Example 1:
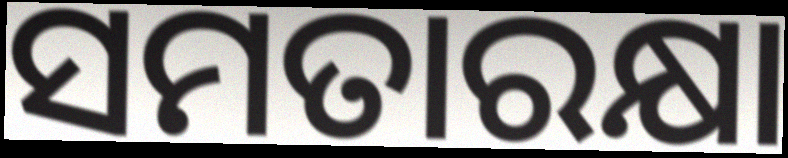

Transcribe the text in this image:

ସମତାରକ୍ଷା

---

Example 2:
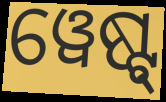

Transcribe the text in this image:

ୱେଷ୍ଟ୍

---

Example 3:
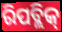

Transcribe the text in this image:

ରିପବ୍ଲିକ୍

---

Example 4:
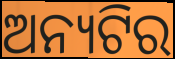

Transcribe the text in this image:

ଅନ୍ୟଟିର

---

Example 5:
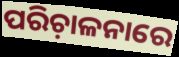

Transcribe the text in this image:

ପରିଚ଼ାଳନାରେ